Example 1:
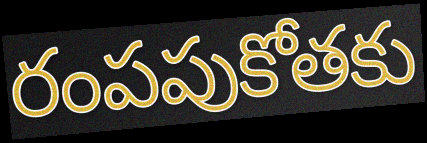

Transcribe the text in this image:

రంపపుకోతకు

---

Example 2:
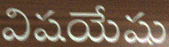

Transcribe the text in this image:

విషయేషు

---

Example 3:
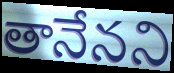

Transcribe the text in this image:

తానేనని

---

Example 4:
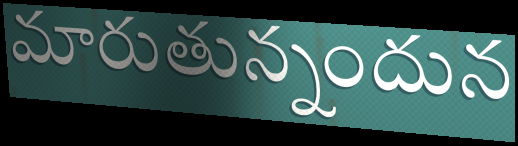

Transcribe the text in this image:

మారుతున్నందున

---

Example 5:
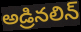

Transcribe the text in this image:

అడ్రినలిన్